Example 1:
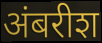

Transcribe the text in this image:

अंबरीश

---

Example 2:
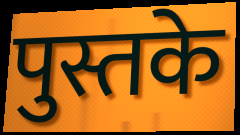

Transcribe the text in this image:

पुस्तके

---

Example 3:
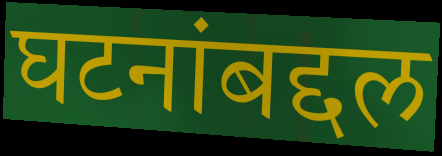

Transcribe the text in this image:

घटनांबद्दल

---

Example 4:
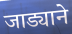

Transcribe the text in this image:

जाड्याने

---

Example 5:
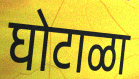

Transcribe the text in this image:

घोटाळा